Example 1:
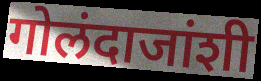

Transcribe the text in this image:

गोलंदाजांशी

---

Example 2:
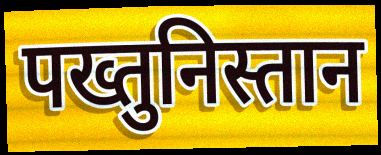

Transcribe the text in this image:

पख्तुनिस्तान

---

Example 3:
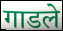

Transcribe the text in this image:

गाडले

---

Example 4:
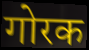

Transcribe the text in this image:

गोरक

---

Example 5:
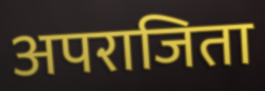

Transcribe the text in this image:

अपराजिता